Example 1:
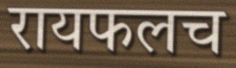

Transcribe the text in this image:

रायफलच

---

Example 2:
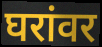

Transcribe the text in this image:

घरांवर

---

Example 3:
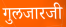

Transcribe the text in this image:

गुलजारजी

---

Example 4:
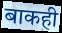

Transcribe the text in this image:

बाकही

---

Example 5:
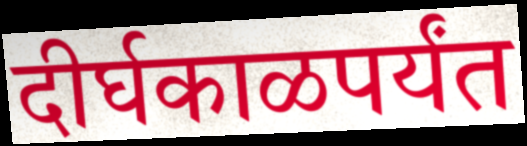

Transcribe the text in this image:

दीर्घकाळपर्यंत